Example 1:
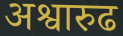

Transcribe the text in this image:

अश्वारुढ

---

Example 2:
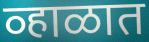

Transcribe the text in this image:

व्हाळात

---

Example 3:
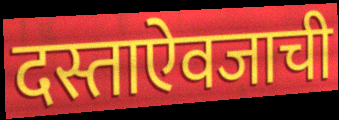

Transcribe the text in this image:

दस्ताऐवजाची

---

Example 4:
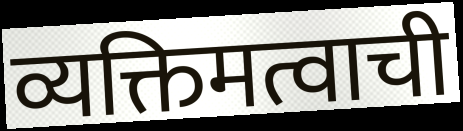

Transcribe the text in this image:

व्यक्तिमत्वाची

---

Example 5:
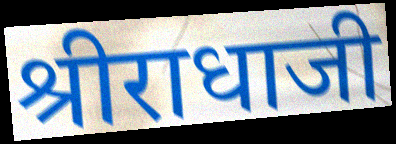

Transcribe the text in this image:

श्रीराधाजी